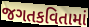
જગતકવિતામાં